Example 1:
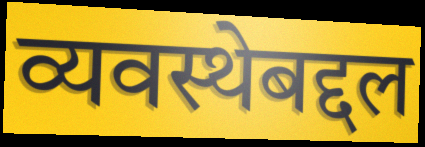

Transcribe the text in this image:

व्यवस्थेबद्दल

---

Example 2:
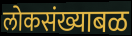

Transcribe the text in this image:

लोकसंख्याबळ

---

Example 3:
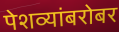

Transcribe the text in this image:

पेशव्यांबरोबर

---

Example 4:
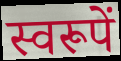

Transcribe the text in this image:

स्वरूपें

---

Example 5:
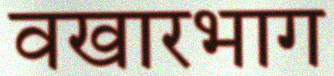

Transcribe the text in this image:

वखारभाग